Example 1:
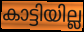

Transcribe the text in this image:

കാട്ടിയില്ല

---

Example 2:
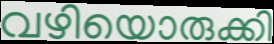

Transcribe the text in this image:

വഴിയൊരുക്കി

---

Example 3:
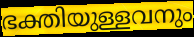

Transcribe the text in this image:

ഭക്തിയുള്ളവനും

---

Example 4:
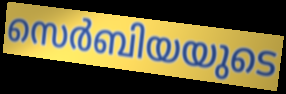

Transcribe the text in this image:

സെർബിയയുടെ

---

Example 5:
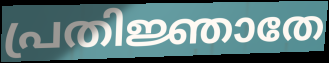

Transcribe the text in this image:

പ്രതിജ്ഞാതേ